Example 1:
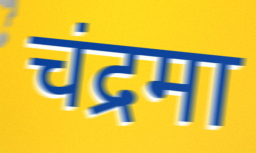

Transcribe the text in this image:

चंद्रमा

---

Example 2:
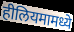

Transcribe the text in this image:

हीलियमामध्ये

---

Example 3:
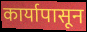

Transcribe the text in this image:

कार्यापासून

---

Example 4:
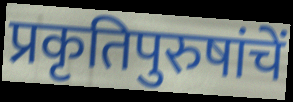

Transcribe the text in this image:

प्रकृतिपुरुषांचें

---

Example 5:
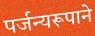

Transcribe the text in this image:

पर्जन्यरूपाने